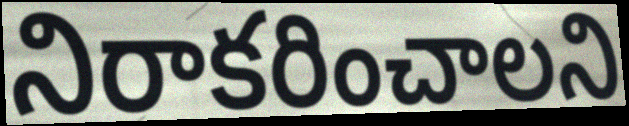
నిరాకరించాలని